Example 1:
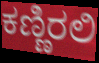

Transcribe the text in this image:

ಕಣ್ಣಿರಲಿ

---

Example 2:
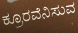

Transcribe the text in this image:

ಕ್ರೂರವೆನಿಸುವ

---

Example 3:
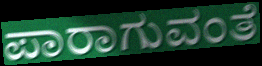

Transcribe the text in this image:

ಪಾರಾಗುವಂತೆ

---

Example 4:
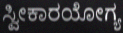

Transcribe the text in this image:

ಸ್ವೀಕಾರಯೋಗ್ಯ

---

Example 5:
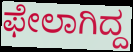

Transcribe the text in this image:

ಫೇಲಾಗಿದ್ದ